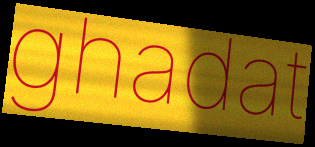
ghadat